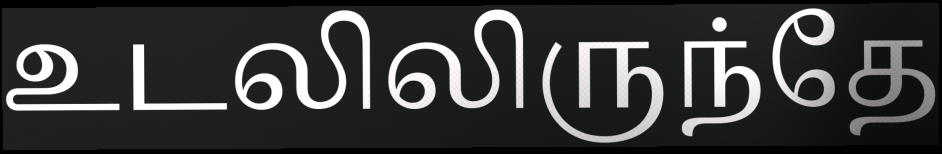
உடலிலிருந்தே